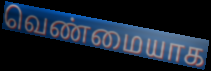
வெண்மையாக